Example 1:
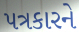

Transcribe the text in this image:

પત્રકારને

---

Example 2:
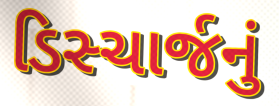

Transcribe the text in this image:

ડિસ્ચાર્જનું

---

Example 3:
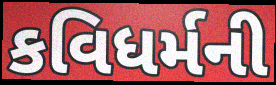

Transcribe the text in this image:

કવિધર્મની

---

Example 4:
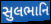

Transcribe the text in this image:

સુલભાનિ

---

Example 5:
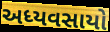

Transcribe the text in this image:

અધ્યવસાયો